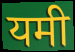
यमी